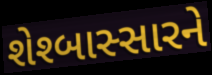
શેશ્બાસ્સારને